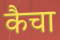
कैचा